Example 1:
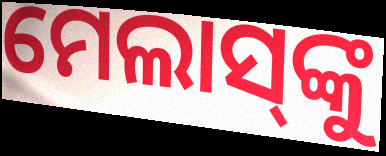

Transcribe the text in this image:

ମେଲାସ୍‌ଙ୍କୁ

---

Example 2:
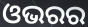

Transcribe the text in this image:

ଓଭରର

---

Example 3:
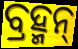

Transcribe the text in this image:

ବ୍ରହ୍ମନ୍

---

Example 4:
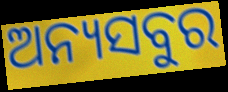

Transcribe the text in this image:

ଅନ୍ୟସବୁର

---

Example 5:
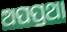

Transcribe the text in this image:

ଅପପ୍ରଥା